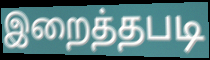
இறைத்தபடி